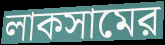
লাকসামের